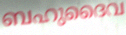
ബഹുദൈവ